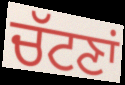
ਚੱਟਣਾਂ